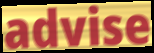
advise